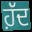
ਹ਼ੱਦ